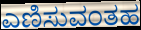
ಎಣಿಸುವಂತಹ